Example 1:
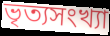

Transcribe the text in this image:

ভৃত্যসংখ্যা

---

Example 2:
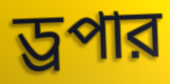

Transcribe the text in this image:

ড্রপার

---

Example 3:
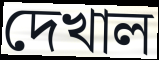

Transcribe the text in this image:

দেখাল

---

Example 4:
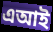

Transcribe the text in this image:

এআই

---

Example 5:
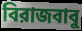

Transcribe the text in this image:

বিরাজবাবু